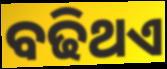
ବଢିଥଏ